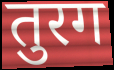
तुरग